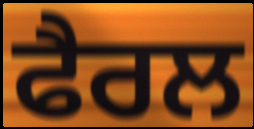
ਫੈਰਲ